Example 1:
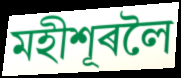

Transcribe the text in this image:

মহীশূৰলৈ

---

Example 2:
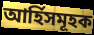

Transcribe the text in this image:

আৰ্হিসমূহক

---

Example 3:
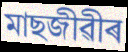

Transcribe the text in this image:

মাছজীৱীৰ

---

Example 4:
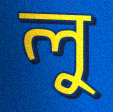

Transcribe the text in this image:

লু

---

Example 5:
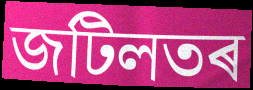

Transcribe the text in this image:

জটিলতৰ